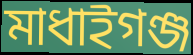
মাধাইগঞ্জ